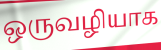
ஒருவழியாக